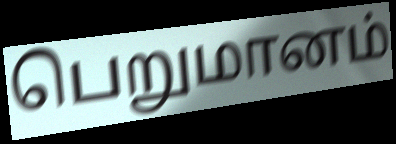
பெறுமானம்